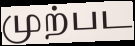
முற்பட